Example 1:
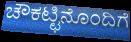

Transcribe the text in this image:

ಚೌಕಟ್ಟಿನೊಂದಿಗೆ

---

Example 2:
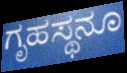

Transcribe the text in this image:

ಗೃಹಸ್ಥನೂ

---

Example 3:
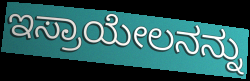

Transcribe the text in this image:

ಇಸ್ರಾಯೇಲನನ್ನು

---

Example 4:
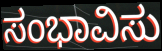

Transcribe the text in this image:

ಸಂಭಾವಿಸು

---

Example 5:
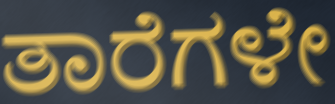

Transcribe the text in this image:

ತಾರೆಗಳೇ